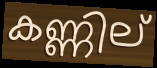
കണ്ണില്